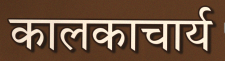
कालकाचार्य